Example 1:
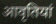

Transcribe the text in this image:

आवृतियां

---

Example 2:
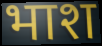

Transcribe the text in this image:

भाश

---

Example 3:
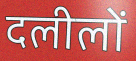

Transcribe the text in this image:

दलीलों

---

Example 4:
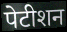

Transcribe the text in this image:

पेटीशन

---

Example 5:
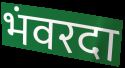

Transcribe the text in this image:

भंवरदा